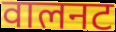
वालनट